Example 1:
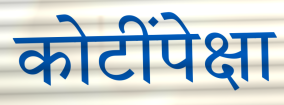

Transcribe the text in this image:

कोटींपेक्षा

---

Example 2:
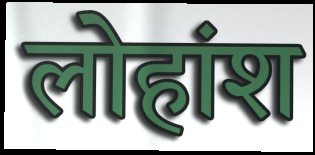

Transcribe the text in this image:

लोहांश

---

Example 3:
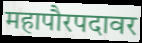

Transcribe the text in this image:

महापौरपदावर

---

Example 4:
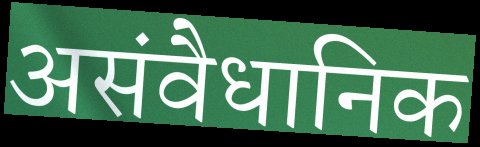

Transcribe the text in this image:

असंवैधानिक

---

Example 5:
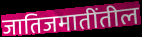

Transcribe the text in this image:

जातिजमातींतील